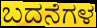
ಬದನೆಗಳ